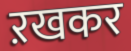
ऱखकर